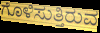
ಗೊಳಿಸುತ್ತಿರುವ